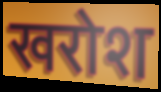
खरोश